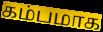
கம்பமாக